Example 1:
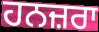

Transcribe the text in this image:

ਹਨਜ਼ਰਾ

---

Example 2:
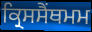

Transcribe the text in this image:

ਕ੍ਰਿਸਸੈਂਥਮਮ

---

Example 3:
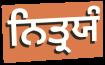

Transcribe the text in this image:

ਨਿਤ੍ਰਯੰ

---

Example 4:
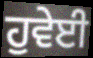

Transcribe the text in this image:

ਹੁਵੇਈ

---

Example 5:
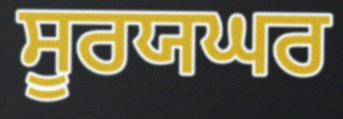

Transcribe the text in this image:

ਸੂਰਯਘਰ